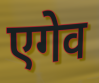
एगेव